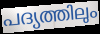
പദ്യത്തിലും